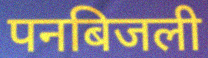
पनबिजली